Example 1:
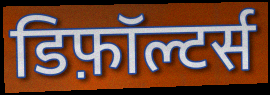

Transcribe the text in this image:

डिफ़ॉल्टर्स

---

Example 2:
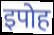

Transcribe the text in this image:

इपोह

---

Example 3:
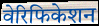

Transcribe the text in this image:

वेरिफिकेशन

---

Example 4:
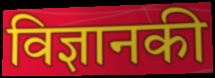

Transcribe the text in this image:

विज्ञानकी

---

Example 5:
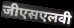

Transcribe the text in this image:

जीएसएलवी